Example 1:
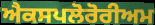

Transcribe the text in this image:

ਐਕਸਪਲੋਰੋਰੀਅਮ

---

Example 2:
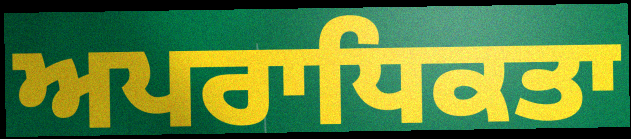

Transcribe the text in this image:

ਅਪਰਾਧਿਕਤਾ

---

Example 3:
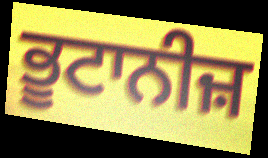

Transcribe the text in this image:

ਭੂਟਾਨੀਜ਼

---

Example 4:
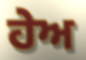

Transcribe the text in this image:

ਹੇਅ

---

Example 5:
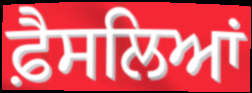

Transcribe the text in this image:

ਫ਼ੈਸਲਿਆਂ